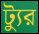
ট্যুর